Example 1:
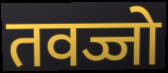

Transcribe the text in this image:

तवज्जो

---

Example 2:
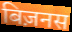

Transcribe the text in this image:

बिज़नस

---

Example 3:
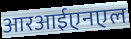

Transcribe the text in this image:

आरआईएनएल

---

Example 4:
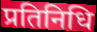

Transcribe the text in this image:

प्रतिनिधि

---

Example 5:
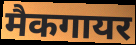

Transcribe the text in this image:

मैकगायर